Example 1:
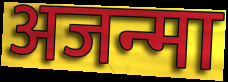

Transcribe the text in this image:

अजन्मा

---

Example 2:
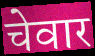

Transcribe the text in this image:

चेवार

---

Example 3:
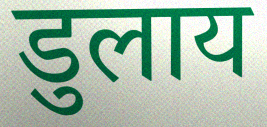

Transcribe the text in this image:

डुलाय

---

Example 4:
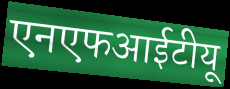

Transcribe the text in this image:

एनएफआईटीयू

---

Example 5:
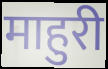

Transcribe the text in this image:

माहुरी